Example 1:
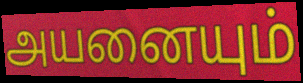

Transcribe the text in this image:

அயனையும்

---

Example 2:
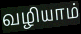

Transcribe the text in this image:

வழியாம்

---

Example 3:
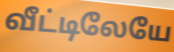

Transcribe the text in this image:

வீட்டிலேயே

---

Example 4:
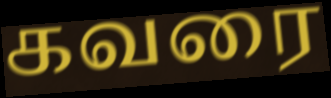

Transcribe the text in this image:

கவரை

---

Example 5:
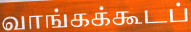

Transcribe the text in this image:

வாங்கக்கூடப்